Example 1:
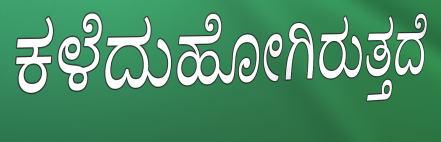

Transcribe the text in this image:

ಕಳೆದುಹೋಗಿರುತ್ತದೆ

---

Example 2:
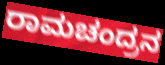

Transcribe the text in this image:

ರಾಮಚಂದ್ರನ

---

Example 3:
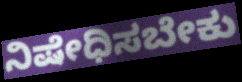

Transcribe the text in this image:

ನಿಷೇಧಿಸಬೇಕು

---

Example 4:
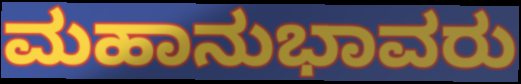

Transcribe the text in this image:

ಮಹಾನುಭಾವರು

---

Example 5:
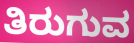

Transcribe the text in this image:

ತಿರುಗುವ